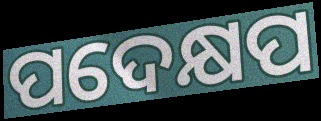
ପଦେକ୍ଷପ